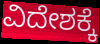
ವಿದೇಶಕ್ಕೆ